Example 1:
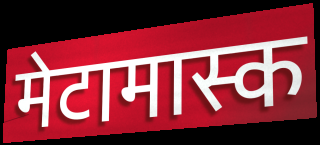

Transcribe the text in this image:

मेटामास्क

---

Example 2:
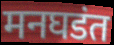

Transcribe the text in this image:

मनघडंत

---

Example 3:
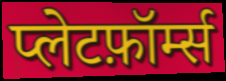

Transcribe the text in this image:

प्लेटफ़ॉर्म्स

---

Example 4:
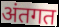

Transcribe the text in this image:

अंतगत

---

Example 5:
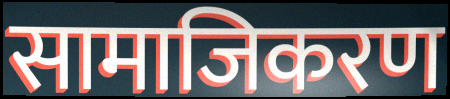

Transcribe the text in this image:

सामाजिकरण